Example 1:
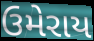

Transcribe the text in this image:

ઉમેરાય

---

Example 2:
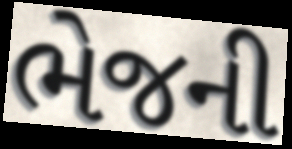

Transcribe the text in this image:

ભેજની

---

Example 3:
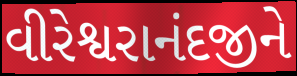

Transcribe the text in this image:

વીરેશ્વરાનંદજીને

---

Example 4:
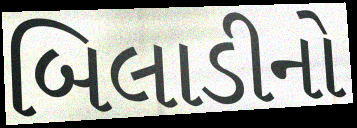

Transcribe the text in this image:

બિલાડીનો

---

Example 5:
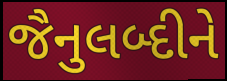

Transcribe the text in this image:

જૈનુલબ્દીને